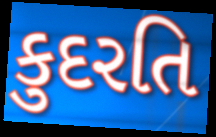
કુદરતિ